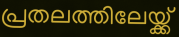
പ്രതലത്തിലേയ്ക്ക്